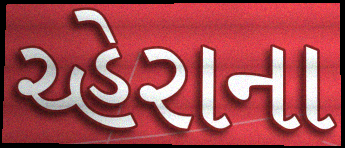
ચ્હેરાના